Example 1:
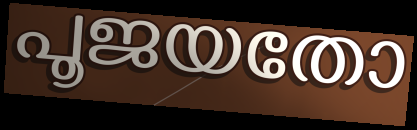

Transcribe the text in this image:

പൂജയതോ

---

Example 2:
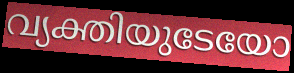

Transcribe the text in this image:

വ്യക്തിയുടേയോ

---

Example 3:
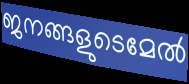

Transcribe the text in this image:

ജനങ്ങളുടെമേൽ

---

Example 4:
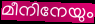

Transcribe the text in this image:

മീനിനേയും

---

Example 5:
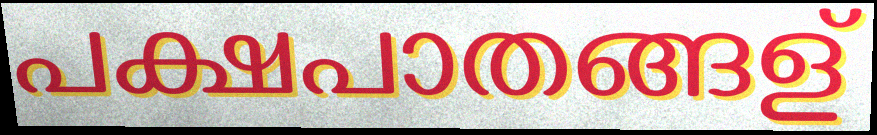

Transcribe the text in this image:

പക്ഷപാതങ്ങള്